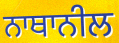
ਨਾਥਾਨੀਲ